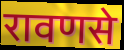
रावणसे